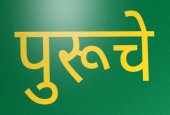
पुरूचे